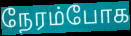
நேரம்போக